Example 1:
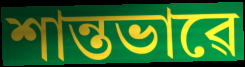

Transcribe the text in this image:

শান্তভাৱে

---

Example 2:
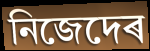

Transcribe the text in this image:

নিজেদেৰ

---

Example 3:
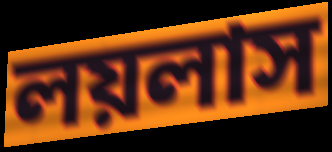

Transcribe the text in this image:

লয়লাস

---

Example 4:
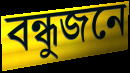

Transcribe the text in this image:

বন্ধুজনে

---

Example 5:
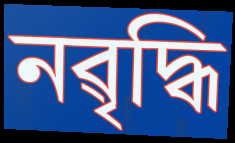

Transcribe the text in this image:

নৱৃদ্ধি